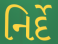
નિર્દે